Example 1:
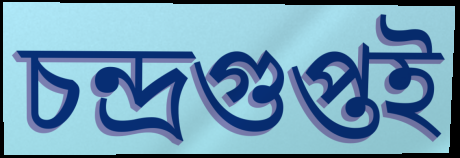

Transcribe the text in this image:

চন্দ্ৰগুপ্তই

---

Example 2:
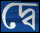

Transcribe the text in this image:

দ্বে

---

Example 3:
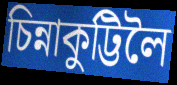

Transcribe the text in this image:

চিন্নাকুট্টিলৈ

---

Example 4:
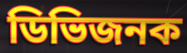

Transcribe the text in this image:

ডিভিজনক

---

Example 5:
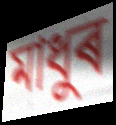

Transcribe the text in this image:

মাধুৰ